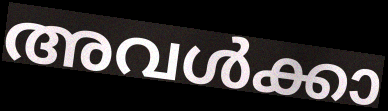
അവൾക്കാ